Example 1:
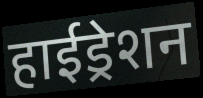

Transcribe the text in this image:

हाईड्रेशन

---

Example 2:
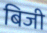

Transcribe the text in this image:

बिजी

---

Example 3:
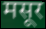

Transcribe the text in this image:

मसूर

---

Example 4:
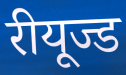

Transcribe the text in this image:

रीयूज्ड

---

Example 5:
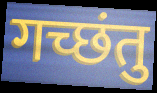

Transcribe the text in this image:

गच्छंतु